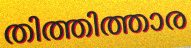
തിത്തിത്താര